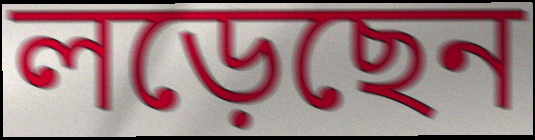
লড়েছেন